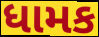
ધામક